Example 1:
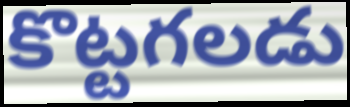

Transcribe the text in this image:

కొట్టగలడు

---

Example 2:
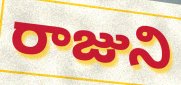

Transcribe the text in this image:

రాజుని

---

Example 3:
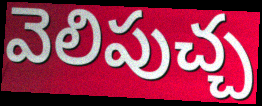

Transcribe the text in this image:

వెలిపుచ్చ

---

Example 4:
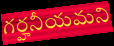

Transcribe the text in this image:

గర్హనీయమని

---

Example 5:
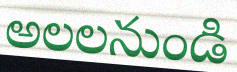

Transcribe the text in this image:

అలలనుండి